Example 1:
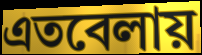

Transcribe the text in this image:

এতবেলায়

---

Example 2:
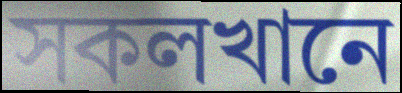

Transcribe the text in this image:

সকলখানে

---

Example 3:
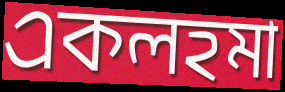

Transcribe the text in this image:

একলহমা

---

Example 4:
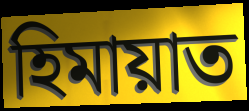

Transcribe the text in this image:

হিমায়াত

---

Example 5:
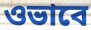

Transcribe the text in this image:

ওভাবে